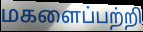
மகளைப்பற்றி